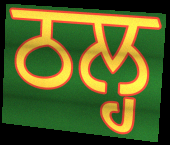
ਠਲ੍ਹ